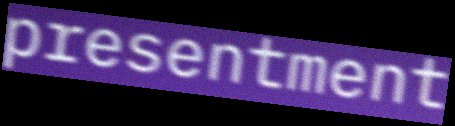
presentment